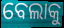
ବେଲାକୁ